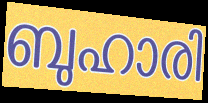
ബുഹാരി